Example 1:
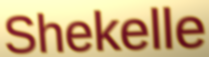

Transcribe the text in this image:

Shekelle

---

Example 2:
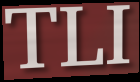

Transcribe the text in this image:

TLI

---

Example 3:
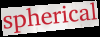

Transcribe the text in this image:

spherical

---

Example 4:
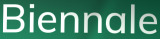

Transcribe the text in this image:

Biennale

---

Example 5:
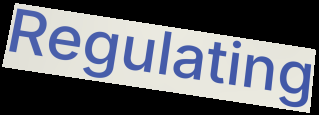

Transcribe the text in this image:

Regulating